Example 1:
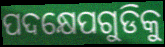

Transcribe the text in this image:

ପଦକ୍ଷେପଗୁଡିକୁ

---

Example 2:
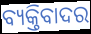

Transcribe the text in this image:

ବ୍ୟକ୍ତିବାଦର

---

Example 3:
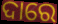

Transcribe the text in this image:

ଦାରେ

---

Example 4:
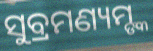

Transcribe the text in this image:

ସୁବ୍ରମଣ୍ୟମ୍ଙ୍କ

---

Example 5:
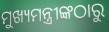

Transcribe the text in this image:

ମୁଖ୍ୟମନ୍ତ୍ରୀଙ୍କଠାରୁ